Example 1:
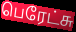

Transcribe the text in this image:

பெரேட்சு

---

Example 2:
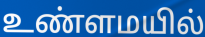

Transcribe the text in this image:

உண்ளமயில்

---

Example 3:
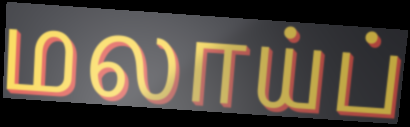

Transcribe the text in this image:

மலாய்ப்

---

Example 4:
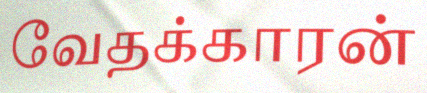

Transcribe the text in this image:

வேதக்காரன்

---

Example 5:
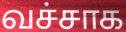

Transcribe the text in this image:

வச்சாக